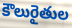
కౌలురైతుల